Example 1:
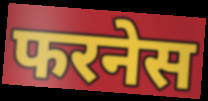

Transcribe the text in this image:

फरनेस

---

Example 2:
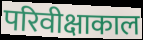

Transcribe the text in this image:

परिवीक्षाकाल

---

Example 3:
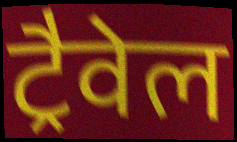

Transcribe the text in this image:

ट्रैवेल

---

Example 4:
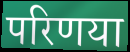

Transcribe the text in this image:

परिणया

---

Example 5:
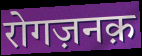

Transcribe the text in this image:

रोगज़नक़